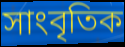
সাংবৃতিক